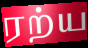
ரற்ய